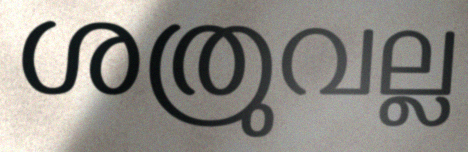
ശത്രുവല്ല